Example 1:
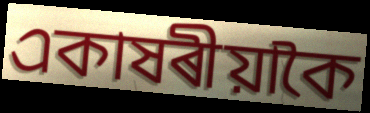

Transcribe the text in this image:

একাষৰীয়াকৈ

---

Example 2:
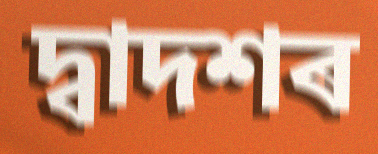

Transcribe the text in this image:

দ্বাদশৰ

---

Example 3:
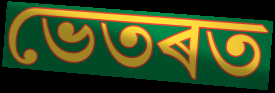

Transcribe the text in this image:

ভেতৰত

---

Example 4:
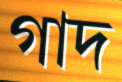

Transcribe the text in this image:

গাদ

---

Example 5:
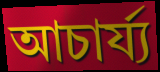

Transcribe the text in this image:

আচাৰ্য্য